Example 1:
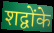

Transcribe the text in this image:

शद्वोंके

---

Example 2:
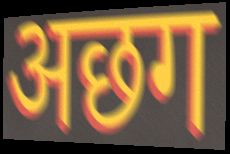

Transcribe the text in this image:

अछग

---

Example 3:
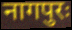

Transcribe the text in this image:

नागपुरः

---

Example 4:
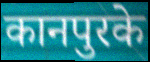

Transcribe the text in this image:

कानपुरके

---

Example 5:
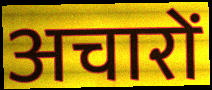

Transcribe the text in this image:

अचारों